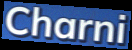
Charni